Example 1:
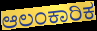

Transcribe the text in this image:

ಆಲಂಕಾರಿಕ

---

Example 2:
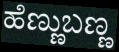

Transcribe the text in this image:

ಹೆಣ್ಣುಬಣ್ಣ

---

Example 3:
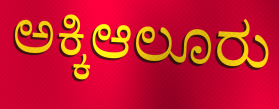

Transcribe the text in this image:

ಅಕ್ಕಿಆಲೂರು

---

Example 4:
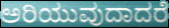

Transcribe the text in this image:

ಅರಿಯುವುದಾದರೆ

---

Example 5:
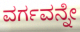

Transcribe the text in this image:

ವರ್ಗವನ್ನೇ